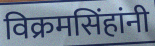
विक्रमसिंहांनी